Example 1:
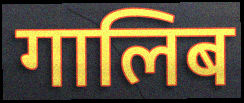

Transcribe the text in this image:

गालिब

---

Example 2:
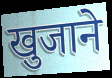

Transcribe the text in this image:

खुजाने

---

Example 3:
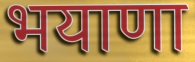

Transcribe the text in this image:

भयाणा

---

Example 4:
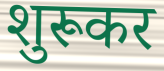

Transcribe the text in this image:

शुरूकर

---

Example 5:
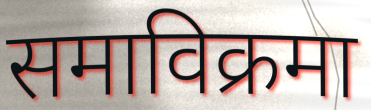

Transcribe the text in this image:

समाविक्रमा